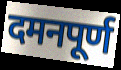
दमनपूर्ण